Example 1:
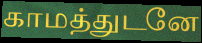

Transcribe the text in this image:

காமத்துடனே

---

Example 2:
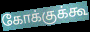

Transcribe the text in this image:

கோக்குக்கூ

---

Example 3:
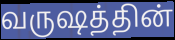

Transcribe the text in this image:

வருஷத்தின்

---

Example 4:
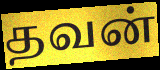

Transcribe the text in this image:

தவன்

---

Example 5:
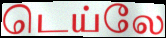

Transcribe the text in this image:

டெய்லே